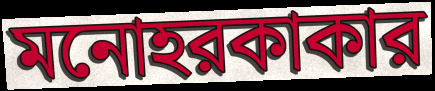
মনোহরকাকার